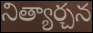
నిత్యార్చన